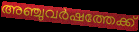
അഞ്ചുവർഷത്തേക്ക്